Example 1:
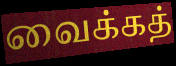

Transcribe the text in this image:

வைக்கத்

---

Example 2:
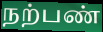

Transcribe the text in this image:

நற்பண்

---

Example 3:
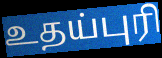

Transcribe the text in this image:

உதய்புரி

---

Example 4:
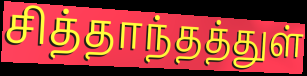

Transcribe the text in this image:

சித்தாந்தத்துள்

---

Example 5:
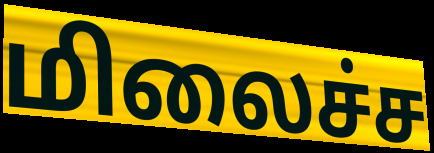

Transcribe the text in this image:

மிலைச்ச